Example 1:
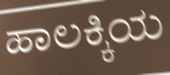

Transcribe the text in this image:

ಹಾಲಕ್ಕಿಯ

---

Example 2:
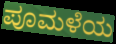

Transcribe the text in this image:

ಪೂಮಳೆಯ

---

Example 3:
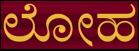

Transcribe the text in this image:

ಲೋಹ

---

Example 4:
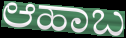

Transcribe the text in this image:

ಆಹಾಬ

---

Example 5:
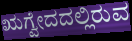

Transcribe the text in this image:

ಋಗ್ವೇದದಲ್ಲಿರುವ